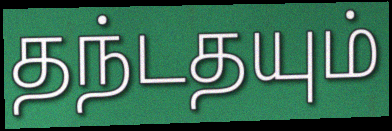
தந்டதயும்